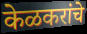
केळकरांचे